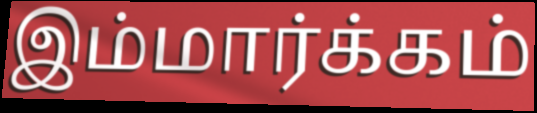
இம்மார்க்கம்